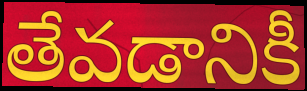
తేవడానికీ